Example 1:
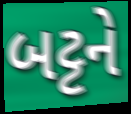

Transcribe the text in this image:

બટ્ટને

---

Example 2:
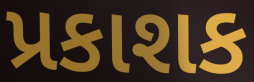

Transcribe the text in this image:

પ્રકાશક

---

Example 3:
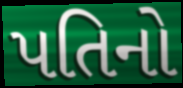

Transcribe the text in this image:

પતિનો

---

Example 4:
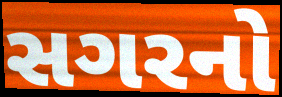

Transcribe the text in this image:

સગરનો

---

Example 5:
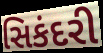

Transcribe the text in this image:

સિકંદરી